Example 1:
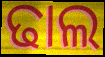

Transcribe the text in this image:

ଢାଲ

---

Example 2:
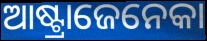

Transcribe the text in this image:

ଆଷ୍ଟ୍ରାଜେନେକା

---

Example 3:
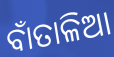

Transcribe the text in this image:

ବାଁତାଳିଆ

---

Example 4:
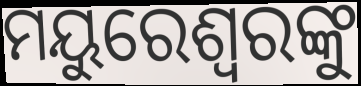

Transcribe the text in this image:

ମୟୁରେଶ୍ବରଙ୍କୁ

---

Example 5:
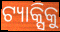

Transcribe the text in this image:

ଟ୍ୟାକ୍ସିକୁ